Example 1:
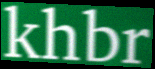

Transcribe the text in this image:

khbr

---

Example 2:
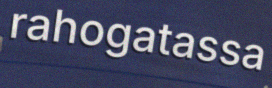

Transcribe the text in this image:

rahogatassa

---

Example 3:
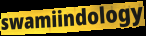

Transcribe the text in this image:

swamiindology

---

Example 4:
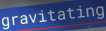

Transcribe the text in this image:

gravitating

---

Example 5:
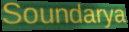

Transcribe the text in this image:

Soundarya